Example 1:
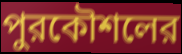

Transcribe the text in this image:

পুরকৌশলের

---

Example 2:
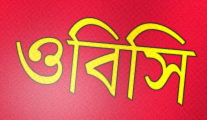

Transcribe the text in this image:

ওবিসি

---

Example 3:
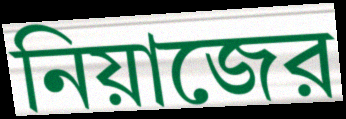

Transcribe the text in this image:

নিয়াজের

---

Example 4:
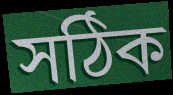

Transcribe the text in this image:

সঠিক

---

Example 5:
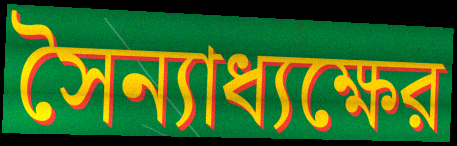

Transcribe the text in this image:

সৈন্যাধ্যক্ষের